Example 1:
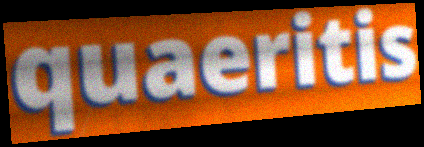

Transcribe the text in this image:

quaeritis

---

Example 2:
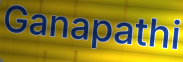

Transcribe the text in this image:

Ganapathi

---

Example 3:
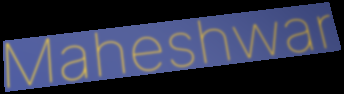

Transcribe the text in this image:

Maheshwar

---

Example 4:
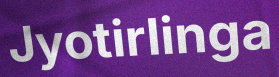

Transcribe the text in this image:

Jyotirlinga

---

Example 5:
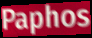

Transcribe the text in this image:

Paphos